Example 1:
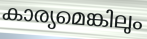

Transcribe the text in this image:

കാര്യമെങ്കിലും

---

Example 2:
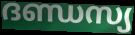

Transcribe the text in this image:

ദണ്ഡസ്യ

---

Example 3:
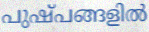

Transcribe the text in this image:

പുഷ്പങ്ങളിൽ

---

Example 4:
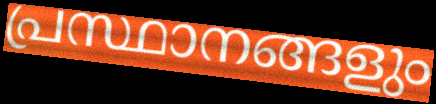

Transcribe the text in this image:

പ്രസ്ഥാനങ്ങളും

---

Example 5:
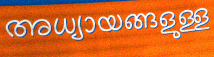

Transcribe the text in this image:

അധ്യായങ്ങളുള്ള